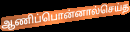
ஆணிப்பொன்னால்செய்த